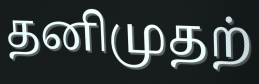
தனிமுதற்